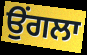
ਉਂਗਲਾ